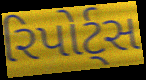
રિપોર્ટ્સ